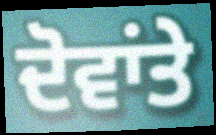
ਦੋਵਾਂਤੇ